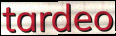
tardeo